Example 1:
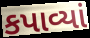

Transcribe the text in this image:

કપાવ્યાં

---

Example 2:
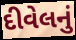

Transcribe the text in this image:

દીવેલનું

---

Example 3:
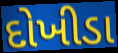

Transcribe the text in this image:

દોખીડા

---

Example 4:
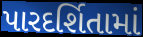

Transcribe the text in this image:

પારદર્શિતામાં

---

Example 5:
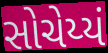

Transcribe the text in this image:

સોચેય્યં